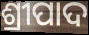
ଶ୍ରୀପାଦ